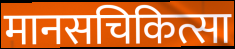
मानसचिकित्सा